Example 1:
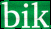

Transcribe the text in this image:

bik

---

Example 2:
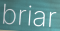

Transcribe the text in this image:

briar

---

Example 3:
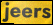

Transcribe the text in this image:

jeers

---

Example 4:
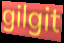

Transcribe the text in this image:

gilgit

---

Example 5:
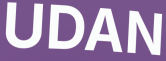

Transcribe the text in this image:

UDAN